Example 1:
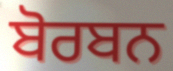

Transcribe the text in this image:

ਬੋਰਬਨ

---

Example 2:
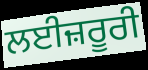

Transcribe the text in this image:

ਲਈਜ਼ਰੂਰੀ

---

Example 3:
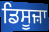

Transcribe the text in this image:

ਡਿਸੂਜ਼ਾ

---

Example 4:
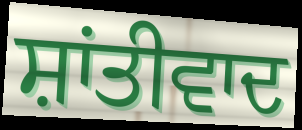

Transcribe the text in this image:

ਸ਼ਾਂਤੀਵਾਦ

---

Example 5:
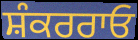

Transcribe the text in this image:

ਸ਼ੰਕਰਰਾਓ